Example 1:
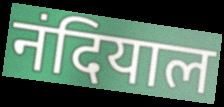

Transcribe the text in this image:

नंदियाल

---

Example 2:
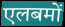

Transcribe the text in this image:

एलबमों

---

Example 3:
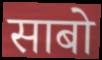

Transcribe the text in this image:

साबो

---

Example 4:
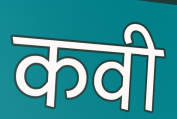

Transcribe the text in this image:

कवी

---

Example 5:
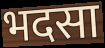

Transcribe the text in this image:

भदसा